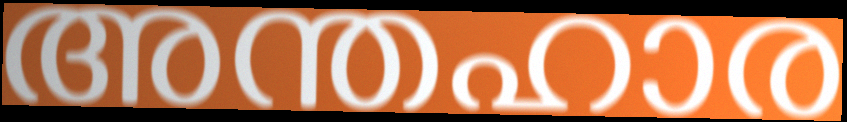
അന്തഹാര